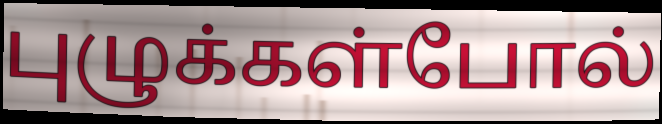
புழுக்கள்போல்